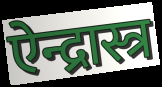
ऐन्द्रास्त्र